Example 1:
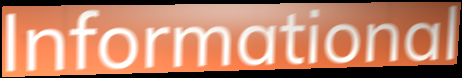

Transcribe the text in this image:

Informational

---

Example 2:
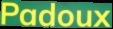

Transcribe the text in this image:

Padoux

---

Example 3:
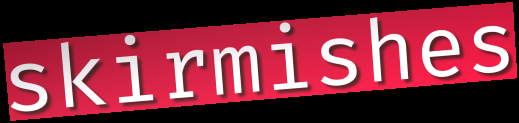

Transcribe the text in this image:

skirmishes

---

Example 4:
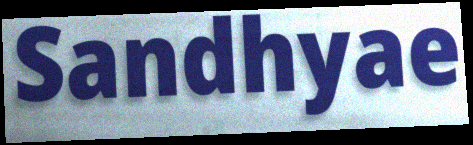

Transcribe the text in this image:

Sandhyae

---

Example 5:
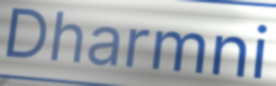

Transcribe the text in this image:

Dharmni